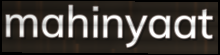
mahinyaat